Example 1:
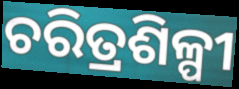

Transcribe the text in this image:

ଚରିତ୍ରଶିଳ୍ପୀ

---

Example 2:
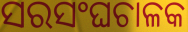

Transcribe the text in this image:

ସରସଂଘଚାଳକ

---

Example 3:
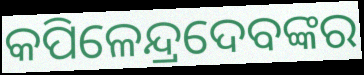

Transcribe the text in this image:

କପିଳେନ୍ଦ୍ରଦେବଙ୍କର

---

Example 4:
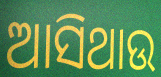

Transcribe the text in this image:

ଆସିଥାଉ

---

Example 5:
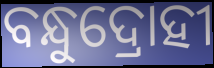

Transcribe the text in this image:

ବନ୍ଧୁଦ୍ରୋହୀ